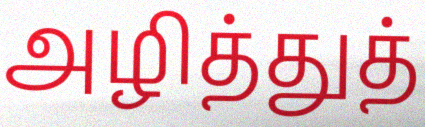
அழித்துத்